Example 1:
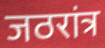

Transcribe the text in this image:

जठरांत्र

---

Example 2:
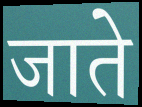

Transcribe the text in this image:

जाते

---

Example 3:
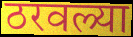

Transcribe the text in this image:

ठरवल्या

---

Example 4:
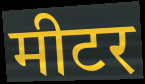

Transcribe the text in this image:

मीटर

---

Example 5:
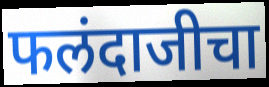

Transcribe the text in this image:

फलंदाजीचा